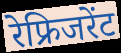
रेफ्रिजरेंट